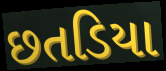
છતડિયા